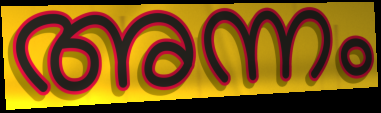
അന്നം